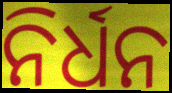
ନିର୍ଧନ